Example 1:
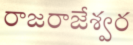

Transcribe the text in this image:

రాజరాజేశ్వర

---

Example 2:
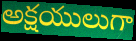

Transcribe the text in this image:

అక్షయులుగా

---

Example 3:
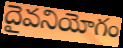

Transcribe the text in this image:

దైవనియోగం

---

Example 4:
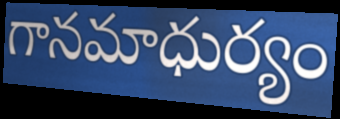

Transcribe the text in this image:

గానమాధుర్యం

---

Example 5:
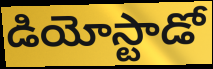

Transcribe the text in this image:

డియోస్టాడో